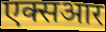
एक्सआर